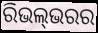
ରିଭଲ୍‍ଭରର